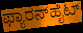
ಫ್ಯಾರನ್‌ಹೈಟ್